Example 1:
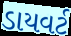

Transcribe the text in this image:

ડાયવર્ટ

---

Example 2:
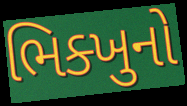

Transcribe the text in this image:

ભિક્ખુનો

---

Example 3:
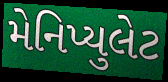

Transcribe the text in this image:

મેનિપ્યુલેટ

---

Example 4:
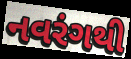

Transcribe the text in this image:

નવરંગથી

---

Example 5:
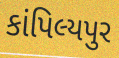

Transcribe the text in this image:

કાંપિલ્યપુર